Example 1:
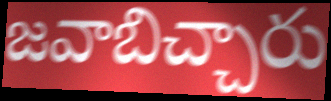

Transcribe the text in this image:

జవాబిచ్చారు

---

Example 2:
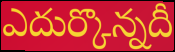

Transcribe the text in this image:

ఎదుర్కొన్నదీ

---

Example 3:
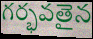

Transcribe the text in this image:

గర్భవతైన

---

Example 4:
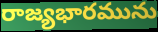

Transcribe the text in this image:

రాజ్యభారమును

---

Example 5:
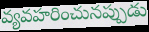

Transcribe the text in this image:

వ్యవహరించునప్పుడు